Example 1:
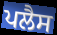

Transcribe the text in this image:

ਪਲੈਸ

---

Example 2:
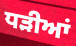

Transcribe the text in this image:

ਧੜੀਆਂ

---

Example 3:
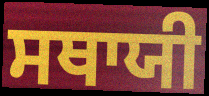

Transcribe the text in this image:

ਸਥਾਯੀ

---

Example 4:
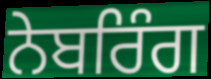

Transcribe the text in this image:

ਨੇਬਰਿੰਗ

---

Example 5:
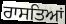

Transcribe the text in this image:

ਰਾਸਤਿਆਂ